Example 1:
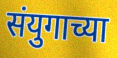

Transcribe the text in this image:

संयुगाच्या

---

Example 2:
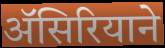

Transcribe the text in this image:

ॲसिरियाने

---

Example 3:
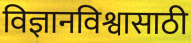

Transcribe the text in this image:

विज्ञानविश्वासाठी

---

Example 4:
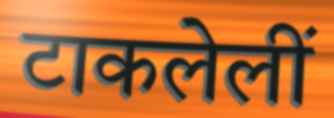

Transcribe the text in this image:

टाकलेलीं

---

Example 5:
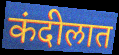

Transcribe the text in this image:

कंदीलात